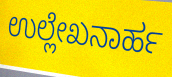
ಉಲ್ಲೇಖನಾರ್ಹ